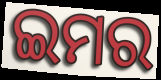
ଇମର